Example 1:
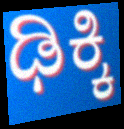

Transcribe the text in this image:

ಢಿಕ್ಕಿ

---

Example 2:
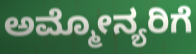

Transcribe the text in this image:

ಅಮ್ಮೋನ್ಯರಿಗೆ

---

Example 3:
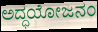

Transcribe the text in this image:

ಅದ್ಧಯೋಜನಂ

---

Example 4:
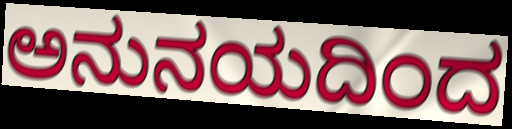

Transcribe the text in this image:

ಅನುನಯದಿಂದ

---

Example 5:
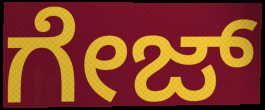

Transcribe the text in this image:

ಗೇಜ್